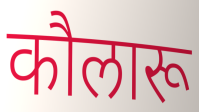
कौलारू